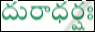
దురాధర్షః